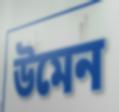
উমেন